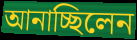
আনাচ্ছিলেন